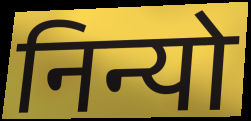
निन्यो